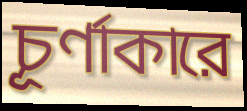
চূর্ণাকারে